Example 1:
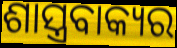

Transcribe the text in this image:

ଶାସ୍ତ୍ରବାକ୍ୟର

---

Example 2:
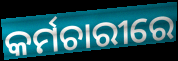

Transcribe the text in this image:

କର୍ମଚାରୀରେ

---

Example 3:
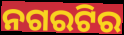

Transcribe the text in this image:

ନଗରଟିର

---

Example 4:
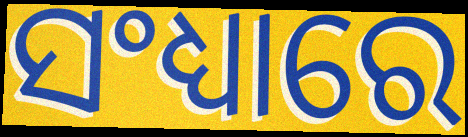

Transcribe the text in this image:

ସଂଧ୍ୟାରେ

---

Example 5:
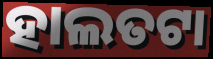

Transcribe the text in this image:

ହାଲତଟା